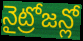
నైట్రోజన్లో